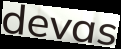
devas